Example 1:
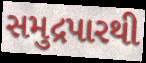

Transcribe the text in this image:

સમુદ્રપારથી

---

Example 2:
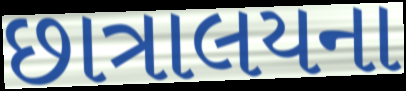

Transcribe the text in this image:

છાત્રાલયના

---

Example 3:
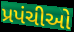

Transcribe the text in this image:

પ્રપંચીઓ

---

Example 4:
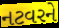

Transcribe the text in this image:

નટવરને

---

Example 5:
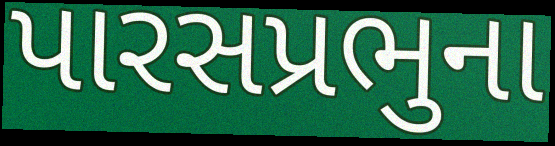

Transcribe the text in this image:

પારસપ્રભુના